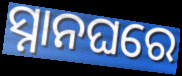
ସ୍ନାନଘରେ